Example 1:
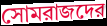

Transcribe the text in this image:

সোমরাজদের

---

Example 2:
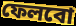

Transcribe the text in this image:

ফেলবো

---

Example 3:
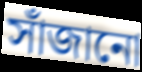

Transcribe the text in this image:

সাঁজানো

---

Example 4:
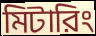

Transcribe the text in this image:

মিটারিং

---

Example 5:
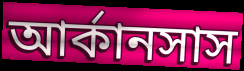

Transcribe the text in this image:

আর্কানসাস